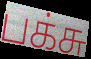
பக்சு